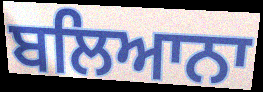
ਬਲਿਆਨਾ